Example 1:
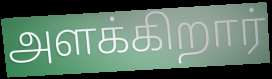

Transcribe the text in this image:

அளக்கிறார்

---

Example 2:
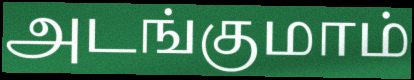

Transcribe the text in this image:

அடங்குமாம்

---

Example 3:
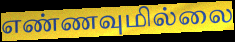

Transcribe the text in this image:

எண்ணவுமில்லை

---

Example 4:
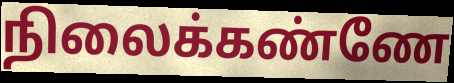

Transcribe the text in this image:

நிலைக்கண்ணே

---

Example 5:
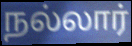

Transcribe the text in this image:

நல்லார்